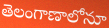
తెలంగాణాలోనూ